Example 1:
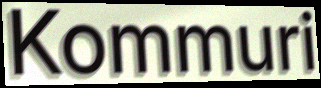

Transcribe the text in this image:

Kommuri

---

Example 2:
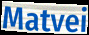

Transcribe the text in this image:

Matvei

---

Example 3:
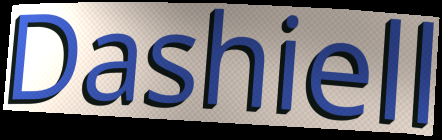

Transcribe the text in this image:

Dashiell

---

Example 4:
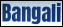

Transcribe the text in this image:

Bangali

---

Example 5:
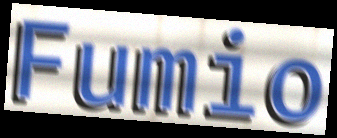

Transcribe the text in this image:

Fumio